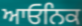
ਆਓਨਿਕ